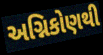
અગ્નિકોણથી